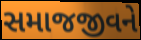
સમાજજીવને